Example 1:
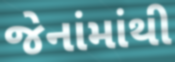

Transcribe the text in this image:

જેનાંમાંથી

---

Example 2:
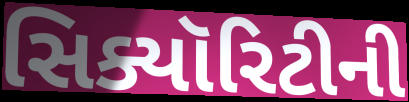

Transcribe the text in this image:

સિક્યૉરિટીની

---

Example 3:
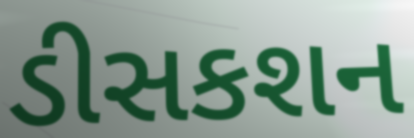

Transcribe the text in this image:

ડીસકશન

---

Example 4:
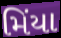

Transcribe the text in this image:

મિંયા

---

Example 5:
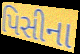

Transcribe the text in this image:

પિસીના